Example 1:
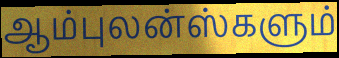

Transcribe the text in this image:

ஆம்புலன்ஸ்களும்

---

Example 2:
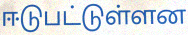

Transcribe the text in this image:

ஈடுபட்டுள்ளன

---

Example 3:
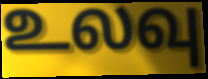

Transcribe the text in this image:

உலவு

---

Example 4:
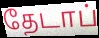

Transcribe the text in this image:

தேடாப்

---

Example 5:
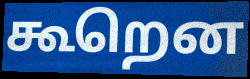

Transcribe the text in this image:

கூறென